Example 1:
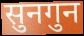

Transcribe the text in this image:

सुनगुन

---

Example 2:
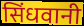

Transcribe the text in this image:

सिंधवानी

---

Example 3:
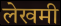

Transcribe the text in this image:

लेखमी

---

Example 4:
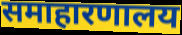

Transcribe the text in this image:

समाहारणालय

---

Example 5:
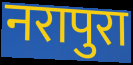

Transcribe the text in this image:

नरापुरा